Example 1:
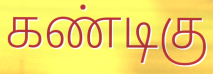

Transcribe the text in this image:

கண்டிகு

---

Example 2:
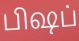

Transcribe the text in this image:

பிஷப்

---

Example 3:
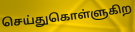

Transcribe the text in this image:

செய்துகொள்ளுகிற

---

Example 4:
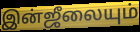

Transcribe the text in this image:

இன்ஜீலையும்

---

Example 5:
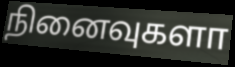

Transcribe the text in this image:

நினைவுகளா